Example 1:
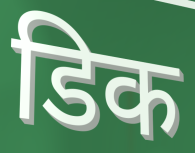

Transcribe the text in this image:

डिक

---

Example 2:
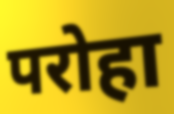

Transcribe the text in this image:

परोहा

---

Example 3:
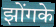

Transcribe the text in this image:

झोंगके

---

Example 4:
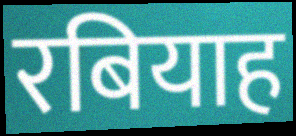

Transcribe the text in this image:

रबियाह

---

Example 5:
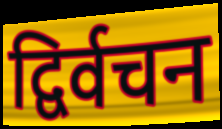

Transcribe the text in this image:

द्विर्वचन